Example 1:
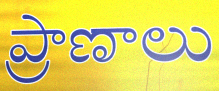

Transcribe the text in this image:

ప్రాణాలు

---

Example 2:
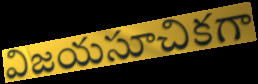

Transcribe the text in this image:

విజయసూచికగా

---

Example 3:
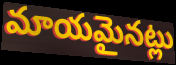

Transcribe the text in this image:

మాయమైనట్లు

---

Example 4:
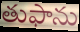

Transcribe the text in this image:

తుఫాను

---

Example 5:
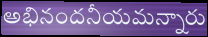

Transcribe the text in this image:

అభినందనీయమన్నారు